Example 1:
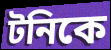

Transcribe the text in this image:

টনিকে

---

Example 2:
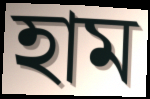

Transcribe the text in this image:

হাম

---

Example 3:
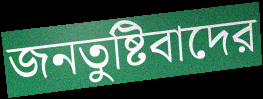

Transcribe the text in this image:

জনতুষ্টিবাদের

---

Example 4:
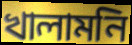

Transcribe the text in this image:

খালামনি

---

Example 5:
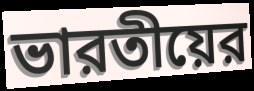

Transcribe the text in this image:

ভারতীয়ের